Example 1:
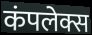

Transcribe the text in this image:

कंपलेक्स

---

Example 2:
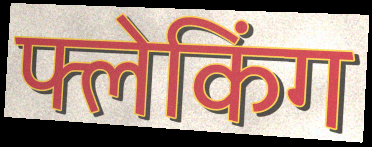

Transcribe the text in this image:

फ्लेकिंग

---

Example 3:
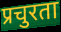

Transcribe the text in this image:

प्रचुरता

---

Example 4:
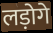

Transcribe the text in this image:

लड़ोगे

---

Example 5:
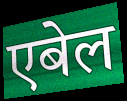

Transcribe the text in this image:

एबेल